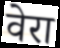
वेरा